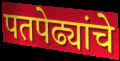
पतपेढ्यांचे